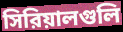
সিরিয়ালগুলি